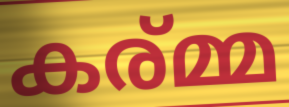
കര്മ്മ